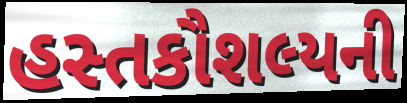
હસ્તકૌશલ્યની